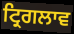
ਟ੍ਰਿਗਲਾਵ